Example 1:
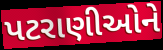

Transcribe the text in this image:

પટરાણીઓને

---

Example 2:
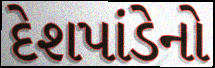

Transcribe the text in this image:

દેશપાંડેનો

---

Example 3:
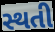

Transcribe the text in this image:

સ્થતી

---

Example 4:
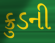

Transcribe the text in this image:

ક્રુડની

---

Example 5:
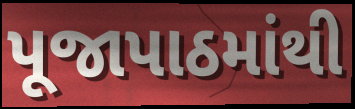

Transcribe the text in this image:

પૂજાપાઠમાંથી